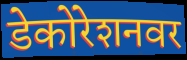
डेकोरेशनवर